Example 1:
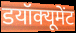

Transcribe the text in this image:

डयॉक्‍यूमेंट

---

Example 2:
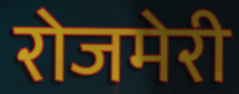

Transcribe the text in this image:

रोजमेरी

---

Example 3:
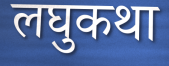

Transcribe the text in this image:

लघुकथा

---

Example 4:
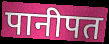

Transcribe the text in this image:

पानीपत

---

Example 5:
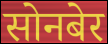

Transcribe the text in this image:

सोनबेर